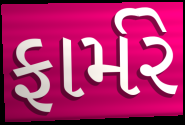
ફાર્મરે